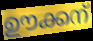
ഊക്കന്